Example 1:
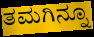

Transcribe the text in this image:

ತಮಗಿನ್ನೂ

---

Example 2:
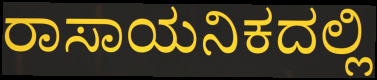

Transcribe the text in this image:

ರಾಸಾಯನಿಕದಲ್ಲಿ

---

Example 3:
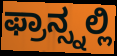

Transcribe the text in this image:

ಫ್ರಾನ್ಸ್ನಲ್ಲಿ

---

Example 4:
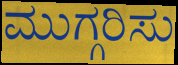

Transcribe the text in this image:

ಮುಗ್ಗರಿಸು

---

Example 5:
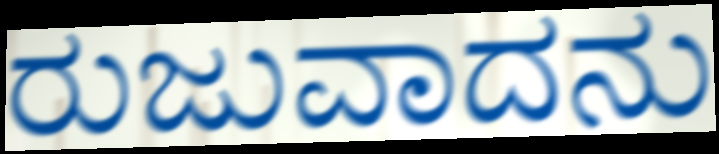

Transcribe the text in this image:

ರುಜುವಾದನು